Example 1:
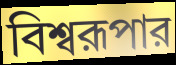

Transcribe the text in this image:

বিশ্বরূপার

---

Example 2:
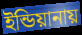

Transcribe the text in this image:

ইন্ডিয়ানায়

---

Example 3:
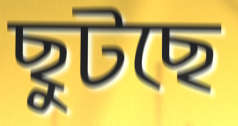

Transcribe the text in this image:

ছুটছে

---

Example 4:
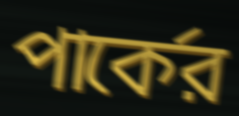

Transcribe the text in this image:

পার্কের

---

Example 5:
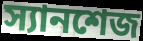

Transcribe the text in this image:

স্যানশেজ